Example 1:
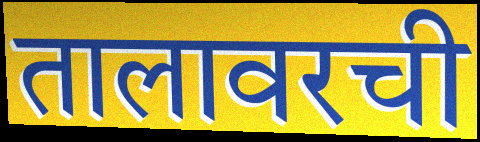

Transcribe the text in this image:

तालावरची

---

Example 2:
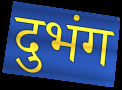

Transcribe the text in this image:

दुभंग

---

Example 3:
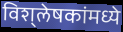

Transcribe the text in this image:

विश्लेषकांमध्ये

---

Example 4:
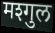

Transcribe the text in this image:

मश्गुल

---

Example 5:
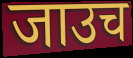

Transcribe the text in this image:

जाउच